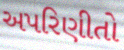
અપરિણીતો